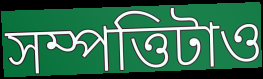
সম্পত্তিটাও